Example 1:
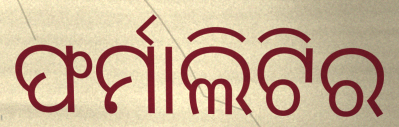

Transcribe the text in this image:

ଫର୍ମାଲିଟିର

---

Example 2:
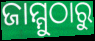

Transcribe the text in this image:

ଜାମ୍ମୁଠାରୁ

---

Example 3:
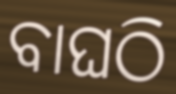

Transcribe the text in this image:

ବାଘଠି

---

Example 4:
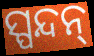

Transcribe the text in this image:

ସ୍ପନ୍ଦନ୍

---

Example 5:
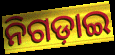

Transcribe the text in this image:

ନିଗଡ଼ାଇ